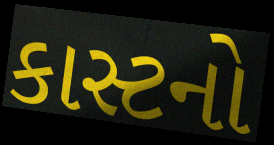
કાસ્ટનો